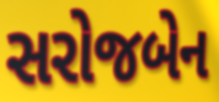
સરોજબેન